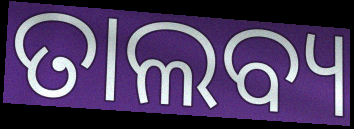
ତାଲବ୍ୟ